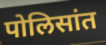
पोलिसांत